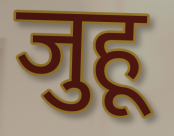
जुहू